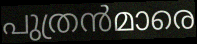
പുത്രൻമാരെ